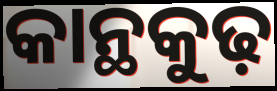
କାନ୍ଥକୁଢ଼